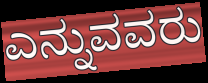
ಎನ್ನುವವರು